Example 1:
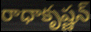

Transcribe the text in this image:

రాధాకృష్ణన్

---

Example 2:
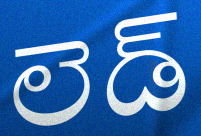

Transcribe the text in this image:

లెడ్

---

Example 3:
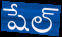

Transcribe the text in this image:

షేల్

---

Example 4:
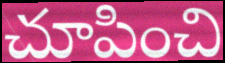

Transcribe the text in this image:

చూపించి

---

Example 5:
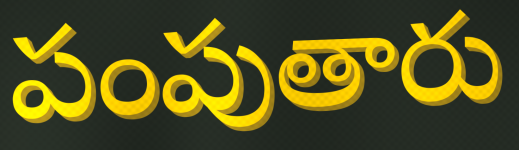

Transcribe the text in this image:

పంపుతారు